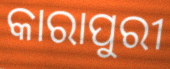
କାରାପୁରୀ